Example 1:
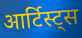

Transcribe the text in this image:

आर्टिस्ट्स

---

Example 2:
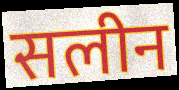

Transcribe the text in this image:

सलीन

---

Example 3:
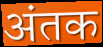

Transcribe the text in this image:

अंतक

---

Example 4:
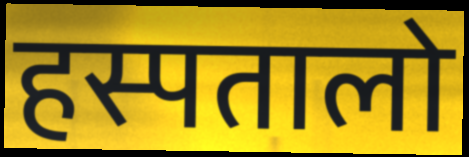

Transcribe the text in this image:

हस्पतालो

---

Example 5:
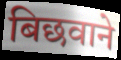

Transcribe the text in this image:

बिछवाने